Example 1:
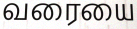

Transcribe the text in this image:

வரையை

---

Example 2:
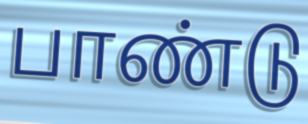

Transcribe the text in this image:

பாண்டு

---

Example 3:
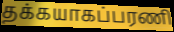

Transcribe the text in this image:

தக்கயாகப்பரணி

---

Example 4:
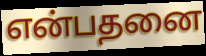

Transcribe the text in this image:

என்பதனை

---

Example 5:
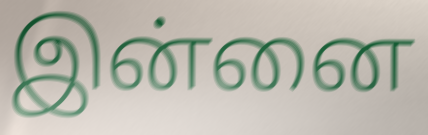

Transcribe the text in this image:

இன்னை